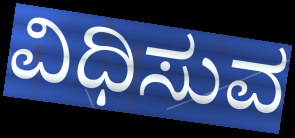
ವಿಧಿಸುವ